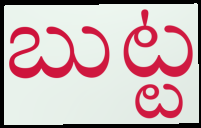
బుట్ట